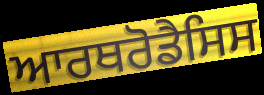
ਆਰਥਰੋਡੈਸਿਸ